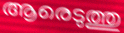
ആരെടുത്തു